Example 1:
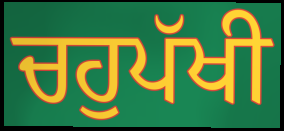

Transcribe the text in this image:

ਚਹੁਪੱਖੀ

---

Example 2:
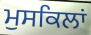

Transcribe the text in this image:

ਮੁਸਕਿਲਾਂ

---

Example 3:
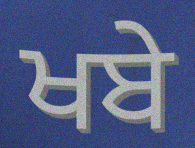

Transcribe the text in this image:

ਖਬੇ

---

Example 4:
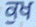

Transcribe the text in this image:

ਕੁਖ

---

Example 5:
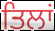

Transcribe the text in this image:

ਤਿਲਾਂ